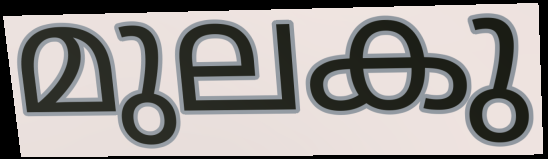
മുലകു